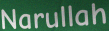
Narullah